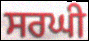
ਸਰਘੀ